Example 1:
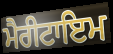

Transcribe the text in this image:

ਮੈਰੀਟਾਇਮ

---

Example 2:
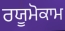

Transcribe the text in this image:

ਰਯੂਮੋਕਾਮ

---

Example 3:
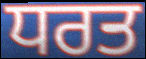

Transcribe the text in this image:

ਧਰਤ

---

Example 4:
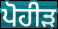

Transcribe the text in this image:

ਪੋਹੀੜ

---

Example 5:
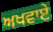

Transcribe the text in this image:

ਅਖਵਾਏ